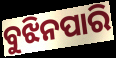
ବୁଝିନପାରି